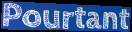
Pourtant